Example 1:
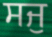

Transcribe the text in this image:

ਸਜੁ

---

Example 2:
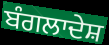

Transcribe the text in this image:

ਬੰਗਲਾਦੇਸ਼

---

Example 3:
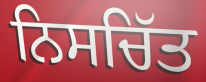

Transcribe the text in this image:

ਨਿਸਚਿੱਤ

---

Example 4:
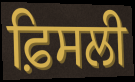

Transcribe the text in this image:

ਫ਼ਿਸਲੀ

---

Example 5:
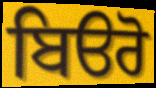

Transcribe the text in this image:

ਬਿੳਰੋ